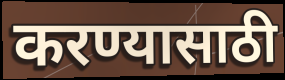
करण्यासाठी